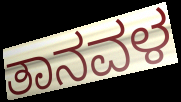
ತಾನವಳ